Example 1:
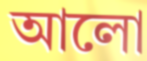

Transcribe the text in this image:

আলো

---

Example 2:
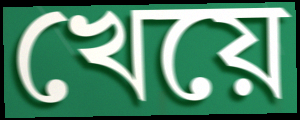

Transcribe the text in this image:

খেয়ে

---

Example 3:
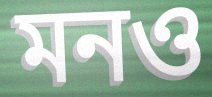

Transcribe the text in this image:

মনও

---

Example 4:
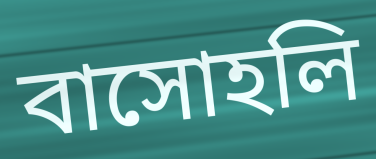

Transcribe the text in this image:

বাসোহলি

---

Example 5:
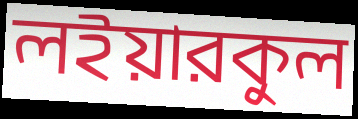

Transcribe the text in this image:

লইয়ারকুল